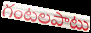
గంటలపాటు